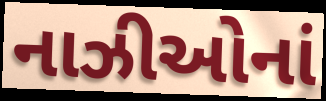
નાઝીઓનાં